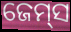
ଜେମ୍‌ସ